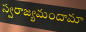
స్వరాజ్యమందామా